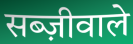
सब्ज़ीवाले